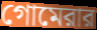
গোমেরার